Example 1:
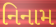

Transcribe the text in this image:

નિનામ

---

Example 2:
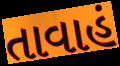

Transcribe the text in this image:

તાવાહં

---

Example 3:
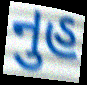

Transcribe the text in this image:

નુહ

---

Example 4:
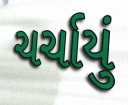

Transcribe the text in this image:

ચર્ચાયું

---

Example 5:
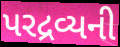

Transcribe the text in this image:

પરદ્રવ્યની